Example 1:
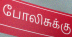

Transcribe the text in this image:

போலிசுக்கு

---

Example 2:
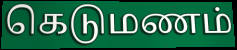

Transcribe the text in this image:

கெடுமணம்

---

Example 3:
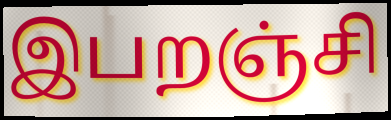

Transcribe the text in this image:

இபறஞ்சி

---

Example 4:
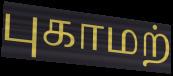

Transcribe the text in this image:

புகாமற்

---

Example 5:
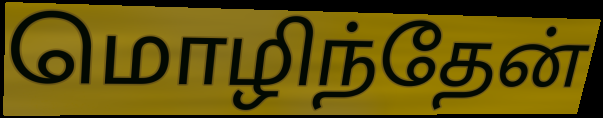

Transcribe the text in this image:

மொழிந்தேன்